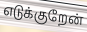
எடுக்குறேன்